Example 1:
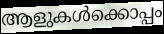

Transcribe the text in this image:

ആളുകൾക്കൊപ്പം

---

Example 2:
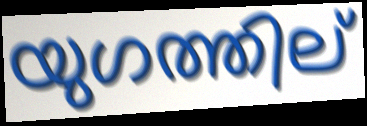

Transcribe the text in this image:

യുഗത്തില്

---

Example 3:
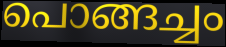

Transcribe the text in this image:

പൊങ്ങച്ചം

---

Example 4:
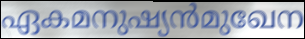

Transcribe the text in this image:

ഏകമനുഷ്യൻമുഖേന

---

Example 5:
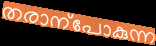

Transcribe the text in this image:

തരാന്പോകുന്ന